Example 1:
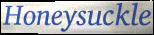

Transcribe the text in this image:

Honeysuckle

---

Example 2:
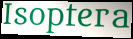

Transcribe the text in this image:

Isoptera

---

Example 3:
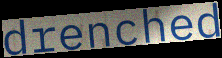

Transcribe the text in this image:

drenched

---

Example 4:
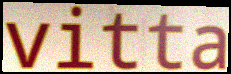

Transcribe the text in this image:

vitta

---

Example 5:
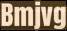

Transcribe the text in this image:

Bmjvg